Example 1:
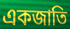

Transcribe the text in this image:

একজাতি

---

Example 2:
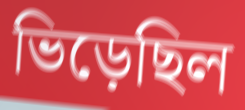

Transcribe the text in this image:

ভিড়েছিল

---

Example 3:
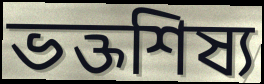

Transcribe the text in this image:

ভক্তশিষ্য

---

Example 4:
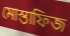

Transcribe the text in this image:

মোস্তাফিজ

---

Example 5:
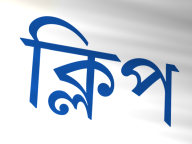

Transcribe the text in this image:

ক্লিপ